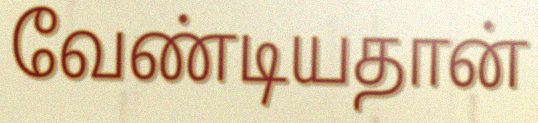
வேண்டியதான்